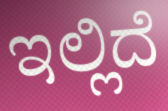
ಇಲ್ಲಿದೆ